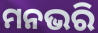
ମନଭରି